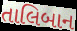
તાલિબાન